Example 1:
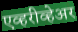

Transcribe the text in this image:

एव्हरीव्हेअर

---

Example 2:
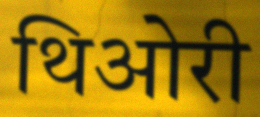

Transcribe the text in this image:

थिओरी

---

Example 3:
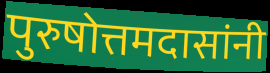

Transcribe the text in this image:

पुरुषोत्तमदासांनी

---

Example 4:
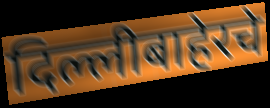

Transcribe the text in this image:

दिल्लीबाहेरचे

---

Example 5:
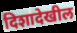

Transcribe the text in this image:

दिशादेखील